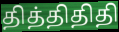
தித்திதிதி